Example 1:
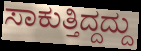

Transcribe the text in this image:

ಸಾಕುತ್ತಿದ್ದದ್ದು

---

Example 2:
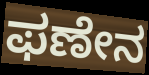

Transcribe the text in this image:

ಫಣೇನ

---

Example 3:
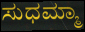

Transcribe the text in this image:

ಸುಧಮ್ಮಾ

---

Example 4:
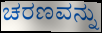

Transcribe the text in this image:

ಚರಣವನ್ನು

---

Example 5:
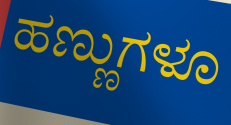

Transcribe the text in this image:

ಹಣ್ಣುಗಳೂ